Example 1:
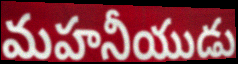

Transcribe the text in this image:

మహనీయుడు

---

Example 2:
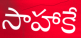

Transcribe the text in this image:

సాహాకే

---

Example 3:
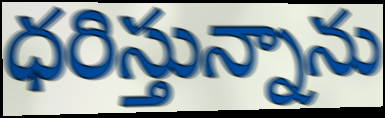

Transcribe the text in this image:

ధరిస్తున్నాను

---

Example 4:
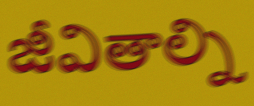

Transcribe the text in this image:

జీవితాల్ని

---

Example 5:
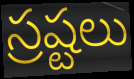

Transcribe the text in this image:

స్రష్టలు